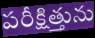
పరీక్షిత్తును